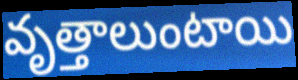
వృత్తాలుంటాయి